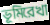
ভূমিরেখা